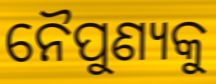
ନୈପୁଣ୍ୟକୁ